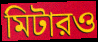
মিটারও